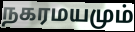
நகரமயமும்